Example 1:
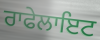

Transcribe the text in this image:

ਰਾਫੇਲਾਇਟ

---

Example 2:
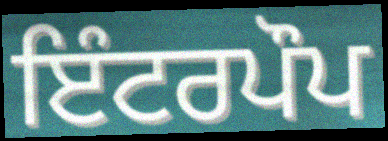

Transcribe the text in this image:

ਇੰਟਰਪੌਪ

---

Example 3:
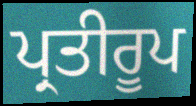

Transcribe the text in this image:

ਪ੍ਰਤੀਰੂਪ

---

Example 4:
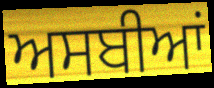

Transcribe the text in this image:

ਅਸਬੀਆਂ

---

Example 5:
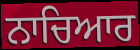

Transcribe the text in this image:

ਨਾਚਿਆਰ